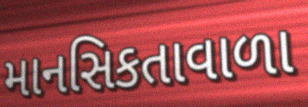
માનસિકતાવાળા